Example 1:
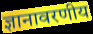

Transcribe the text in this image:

ज्ञानावरणीय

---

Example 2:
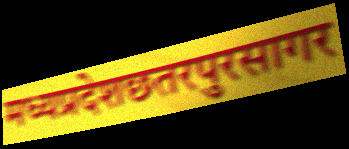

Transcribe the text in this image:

मध्यप्रदेशछतरपुरसागर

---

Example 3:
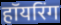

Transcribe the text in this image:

हॉयरिंग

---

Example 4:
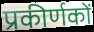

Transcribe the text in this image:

प्रकीर्णकों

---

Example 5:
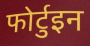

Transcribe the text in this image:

फोर्टुइन